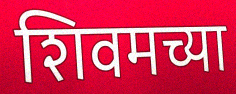
शिवमच्या